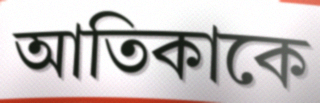
আতিকাকে